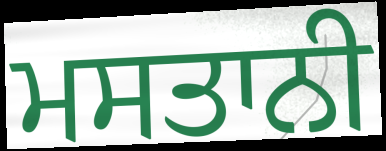
ਮਸਤਾਨੀ